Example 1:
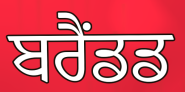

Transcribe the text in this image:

ਬਰੈਂਡਡ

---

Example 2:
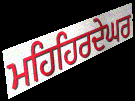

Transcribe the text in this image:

ਮਹਿਹਿਰਦੇਘਰ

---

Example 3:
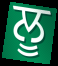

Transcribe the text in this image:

ਲੂ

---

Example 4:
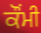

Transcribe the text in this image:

ਕੌਂਮੀ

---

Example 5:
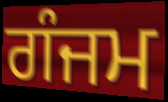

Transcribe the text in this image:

ਗੰਜਮ